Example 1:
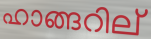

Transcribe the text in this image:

ഹാങ്ങറില്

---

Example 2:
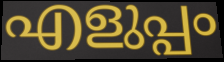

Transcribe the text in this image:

എളുപ്പം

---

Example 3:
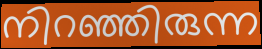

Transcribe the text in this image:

നിറഞ്ഞിരുന്ന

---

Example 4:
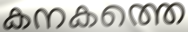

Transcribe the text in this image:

കനകത്തെ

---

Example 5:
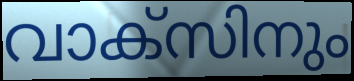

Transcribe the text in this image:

വാക്സിനും